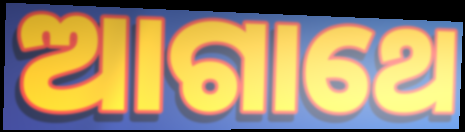
ଆଗାଥେ